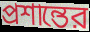
প্রশান্তের